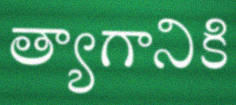
త్యాగానికి